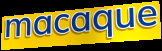
macaque